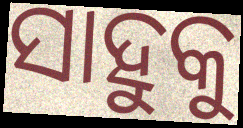
ସାହୁକୁ